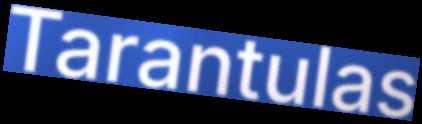
Tarantulas